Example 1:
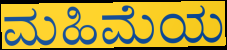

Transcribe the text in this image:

ಮಹಿಮೆಯ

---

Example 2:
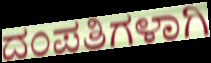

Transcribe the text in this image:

ದಂಪತಿಗಳಾಗಿ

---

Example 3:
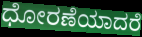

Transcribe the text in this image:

ಧೋರಣೆಯಾದರೆ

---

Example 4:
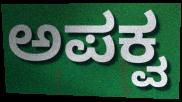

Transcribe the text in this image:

ಅಪಕ್ವ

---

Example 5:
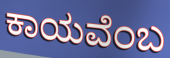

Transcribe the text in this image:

ಕಾಯವೆಂಬ